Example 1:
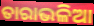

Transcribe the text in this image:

ତାରାଭଳିଆ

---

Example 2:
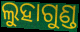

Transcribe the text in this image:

ଲୁହାଗୁଣ୍ଡ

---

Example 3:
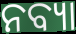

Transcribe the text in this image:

ନବ୍ୟା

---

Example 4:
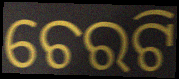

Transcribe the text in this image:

ଚେରଟି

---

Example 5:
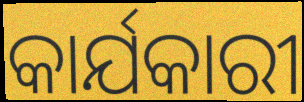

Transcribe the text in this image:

କାର୍ଯକାରୀ